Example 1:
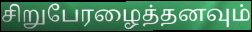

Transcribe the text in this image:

சிறுபேரழைத்தனவும்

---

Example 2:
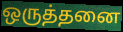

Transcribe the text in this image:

ஒருத்தனை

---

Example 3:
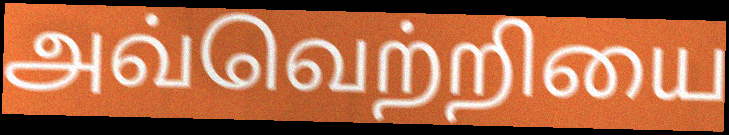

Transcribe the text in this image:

அவ்வெற்றியை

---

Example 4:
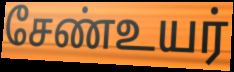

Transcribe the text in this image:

சேண்உயர்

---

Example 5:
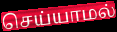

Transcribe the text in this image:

செய்யாமல்